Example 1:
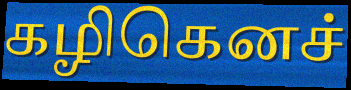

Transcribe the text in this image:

கழிகெனச்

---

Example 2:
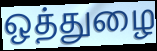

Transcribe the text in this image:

ஒத்துழை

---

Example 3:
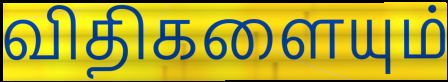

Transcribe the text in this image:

விதிகளையும்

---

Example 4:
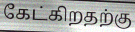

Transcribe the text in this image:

கேட்கிறதற்கு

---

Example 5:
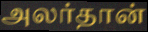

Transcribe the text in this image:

அலர்தான்